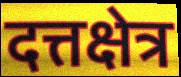
दत्तक्षेत्र